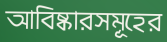
আবিষ্কারসমূহের